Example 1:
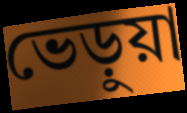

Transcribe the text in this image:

ভেড়ুয়া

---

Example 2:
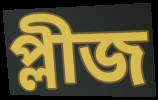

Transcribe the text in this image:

প্লীজ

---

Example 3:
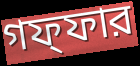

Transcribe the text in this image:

গফ্ফার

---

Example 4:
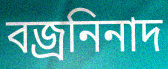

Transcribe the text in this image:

বজ্রনিনাদ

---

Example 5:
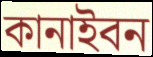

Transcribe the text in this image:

কানাইবন